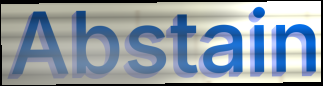
Abstain